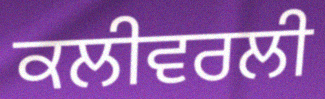
ਕਲੀਵਰਲੀ